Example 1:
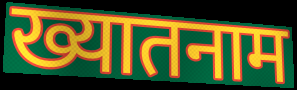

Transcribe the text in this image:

ख्यातनाम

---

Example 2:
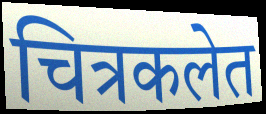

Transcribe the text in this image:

चित्रकलेत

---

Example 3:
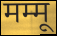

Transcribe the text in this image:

मम्मू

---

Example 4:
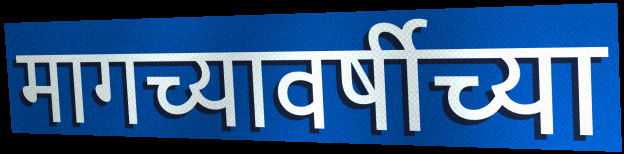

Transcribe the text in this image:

मागच्यावर्षीच्या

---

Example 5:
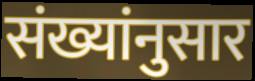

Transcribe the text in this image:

संख्यांनुसार